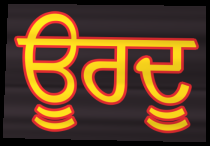
ਊਰਦੂ